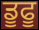
ਡੂਫੂ